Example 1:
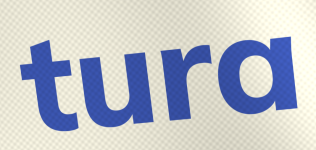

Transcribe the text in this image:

tura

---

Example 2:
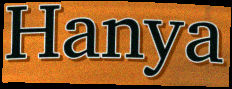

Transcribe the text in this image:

Hanya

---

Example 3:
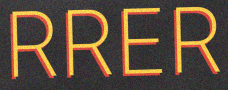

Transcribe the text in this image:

RRER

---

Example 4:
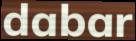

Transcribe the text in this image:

dabar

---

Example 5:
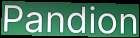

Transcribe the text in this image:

Pandion